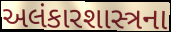
અલંકારશાસ્ત્રના